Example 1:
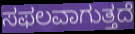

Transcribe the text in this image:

ಸಫಲವಾಗುತ್ತದೆ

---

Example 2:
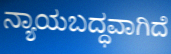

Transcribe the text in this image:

ನ್ಯಾಯಬದ್ಧವಾಗಿದೆ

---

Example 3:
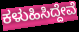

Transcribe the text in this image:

ಕಳುಹಿಸಿದ್ದೇವೆ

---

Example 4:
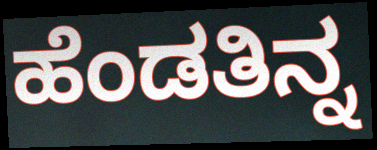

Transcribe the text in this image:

ಹೆಂಡತಿನ್ನ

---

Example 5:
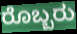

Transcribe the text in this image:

ರೊಬ್ಬರು